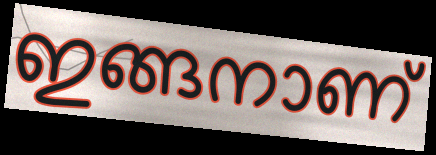
ഇങ്ങനാണ്